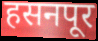
हसनपूर